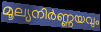
മൂല്യനിർണ്ണയവും